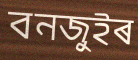
বনজুইৰ